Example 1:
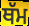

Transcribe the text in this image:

ਥੱਮ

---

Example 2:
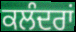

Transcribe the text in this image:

ਕਲੰਦਰਾਂ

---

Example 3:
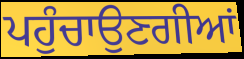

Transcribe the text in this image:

ਪਹੁੰਚਾਉਣਗੀਆਂ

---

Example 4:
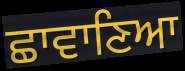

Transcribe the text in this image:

ਛਾਵਾਣਿਆ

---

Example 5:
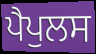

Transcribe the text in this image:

ਪੈਪੁਲਸ